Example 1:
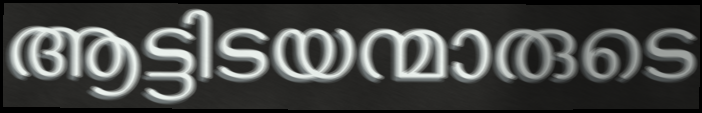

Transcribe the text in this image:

ആട്ടിടയന്മാരുടെ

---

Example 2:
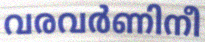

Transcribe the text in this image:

വരവർണിനീ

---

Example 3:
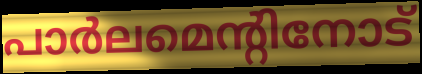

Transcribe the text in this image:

പാർലമെന്റിനോട്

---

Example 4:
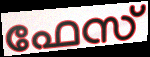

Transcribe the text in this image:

ഫേസ്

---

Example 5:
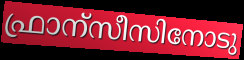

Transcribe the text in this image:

ഫ്രാന്സീസിനോടു